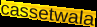
cassetwala